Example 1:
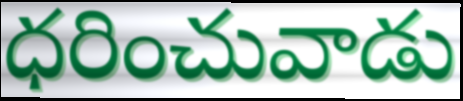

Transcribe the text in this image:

ధరించువాడు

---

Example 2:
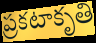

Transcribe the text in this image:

ప్రకటాకృతి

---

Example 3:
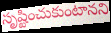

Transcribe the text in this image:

సృష్టించుకుంటానని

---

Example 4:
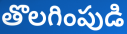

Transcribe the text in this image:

తొలగింపుడి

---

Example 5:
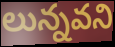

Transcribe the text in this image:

లున్నవని